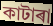
কাটাৰা